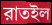
রাতইল